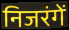
निजरंगें